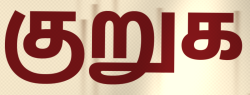
குறுக